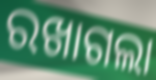
ରଖାଗଲା